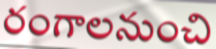
రంగాలనుంచి